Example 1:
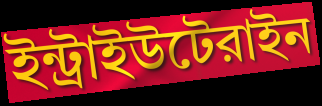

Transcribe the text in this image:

ইন্ট্রাইউটেরাইন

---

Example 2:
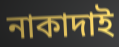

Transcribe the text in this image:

নাকাদাই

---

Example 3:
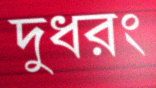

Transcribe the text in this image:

দুধরং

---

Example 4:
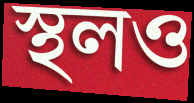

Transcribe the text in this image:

স্থলও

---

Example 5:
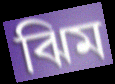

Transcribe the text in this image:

ঝিম